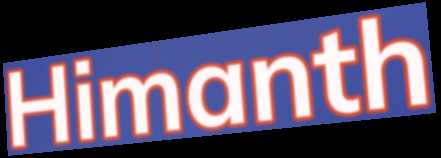
Himanth